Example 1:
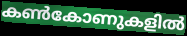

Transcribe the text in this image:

കൺകോണുകളിൽ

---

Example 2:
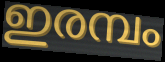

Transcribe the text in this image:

ഇരമ്പം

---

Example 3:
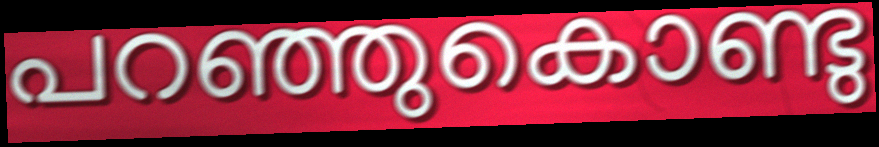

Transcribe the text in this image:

പറഞ്ഞുകൊണ്ടു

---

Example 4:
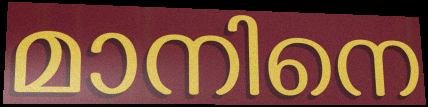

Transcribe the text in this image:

മാനിനെ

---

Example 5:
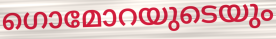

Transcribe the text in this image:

ഗൊമോറയുടെയും